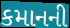
કમાનની